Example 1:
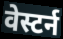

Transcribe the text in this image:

वेस्टर्न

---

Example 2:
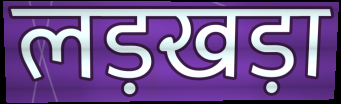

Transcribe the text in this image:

लड़खड़ा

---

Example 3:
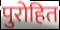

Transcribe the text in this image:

पुरोहित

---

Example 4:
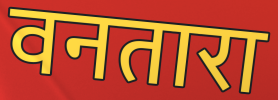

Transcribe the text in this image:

वनतारा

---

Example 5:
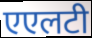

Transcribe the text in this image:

एएलटी